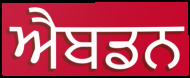
ਐਬਡਨ